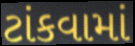
ટાંકવામાં